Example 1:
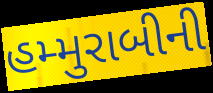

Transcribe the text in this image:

હમ્મુરાબીની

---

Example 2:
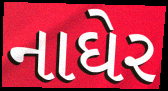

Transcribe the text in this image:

નાઘેર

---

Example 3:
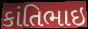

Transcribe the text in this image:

કાંતિભાઇ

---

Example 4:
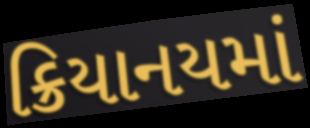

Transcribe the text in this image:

ક્રિયાનયમાં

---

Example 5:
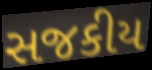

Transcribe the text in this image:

સજકીય